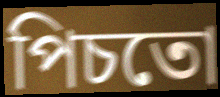
পিচতো